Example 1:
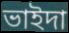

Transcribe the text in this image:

ভাইদা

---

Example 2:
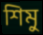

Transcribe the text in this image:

শিমু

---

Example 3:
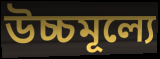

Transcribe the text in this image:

উচ্চমূল্যে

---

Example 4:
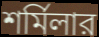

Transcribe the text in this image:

শর্মিলার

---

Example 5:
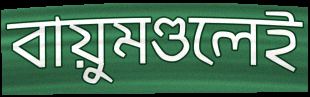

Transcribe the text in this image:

বায়ুমণ্ডলেই